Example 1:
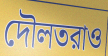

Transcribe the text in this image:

দৌলতরাও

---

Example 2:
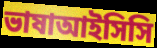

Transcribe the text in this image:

ভাষাআইসিসি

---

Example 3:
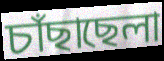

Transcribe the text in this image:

চাঁছাছেলা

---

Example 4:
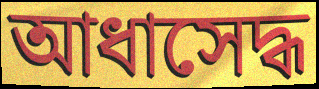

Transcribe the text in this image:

আধাসেদ্ধ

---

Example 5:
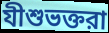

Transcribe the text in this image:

যীশুভক্তরা